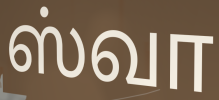
ஸ்வா